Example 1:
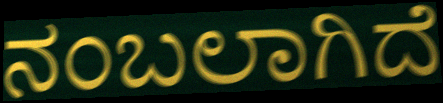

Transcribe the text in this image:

ನಂಬಲಾಗಿದೆ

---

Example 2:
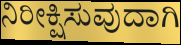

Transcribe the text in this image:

ನಿರೀಕ್ಷಿಸುವುದಾಗಿ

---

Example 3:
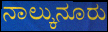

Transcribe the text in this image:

ನಾಲ್ಕುನೂರು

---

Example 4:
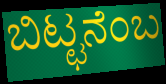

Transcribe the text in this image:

ಬಿಟ್ಟನೆಂಬ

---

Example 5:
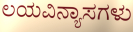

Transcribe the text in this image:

ಲಯವಿನ್ಯಾಸಗಳು